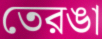
তেরঙা